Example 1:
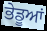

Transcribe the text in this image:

ਭੇਡੂਆਂ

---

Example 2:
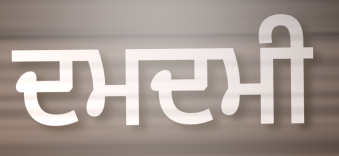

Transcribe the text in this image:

ਦਮਦਮੀ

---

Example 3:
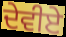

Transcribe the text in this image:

ਦੇਵੀਏ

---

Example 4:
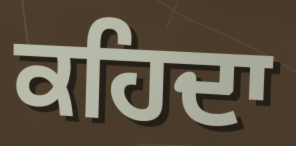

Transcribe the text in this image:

ਕਹਿਦਾ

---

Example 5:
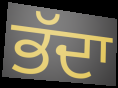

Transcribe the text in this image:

ਭੱਦਾ